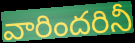
వారిందరినీ